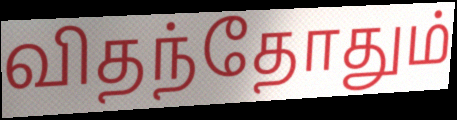
விதந்தோதும்